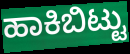
ಹಾಕಿಬಿಟ್ಟು